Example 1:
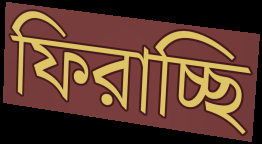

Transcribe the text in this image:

ফিরাচ্ছি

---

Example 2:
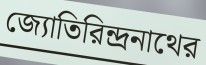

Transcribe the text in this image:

জ্যোতিরিন্দ্রনাথের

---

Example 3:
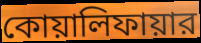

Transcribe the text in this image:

কোয়ালিফায়ার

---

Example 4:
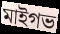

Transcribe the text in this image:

মাইগভ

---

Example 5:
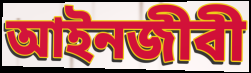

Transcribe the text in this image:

আইনজীবী